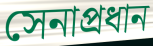
সেনাপ্রধান